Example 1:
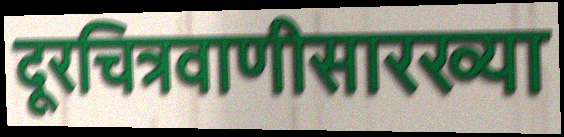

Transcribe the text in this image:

दूरचित्रवाणीसारख्या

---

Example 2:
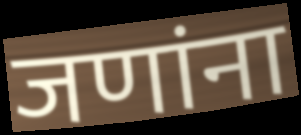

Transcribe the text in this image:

जणांना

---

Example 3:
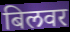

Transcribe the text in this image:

बिलवर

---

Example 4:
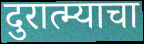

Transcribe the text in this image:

दुरात्म्याचा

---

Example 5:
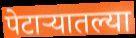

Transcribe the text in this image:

पेटाऱ्यातल्या